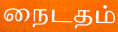
நைடதம்